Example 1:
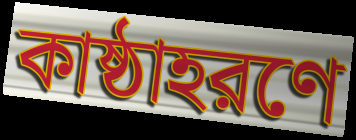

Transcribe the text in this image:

কাষ্ঠাহরণে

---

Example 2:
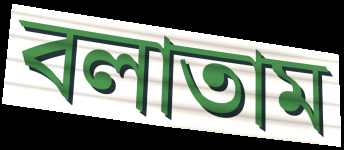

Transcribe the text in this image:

বলাতাম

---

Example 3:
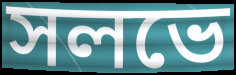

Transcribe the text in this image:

সলভে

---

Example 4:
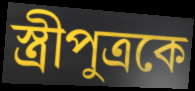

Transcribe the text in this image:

স্ত্রীপুত্রকে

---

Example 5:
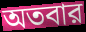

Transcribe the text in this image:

অতবার